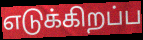
எடுக்கிறப்ப